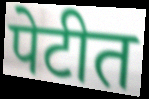
पेटीत